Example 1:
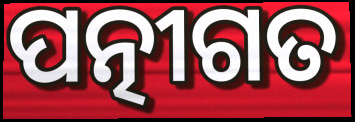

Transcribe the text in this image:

ପତ୍ନୀଗତ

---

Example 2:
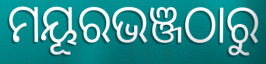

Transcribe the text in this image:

ମୟୂରଭଞ୍ଜଠାରୁ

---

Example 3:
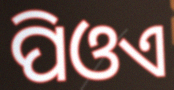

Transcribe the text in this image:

ପିଓଏ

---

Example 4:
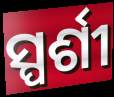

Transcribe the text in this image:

ସ୍ପର୍ଶୀ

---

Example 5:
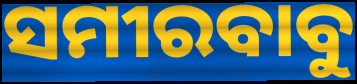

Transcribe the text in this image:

ସମୀରବାବୁ